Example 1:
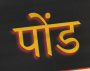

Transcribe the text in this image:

पोंड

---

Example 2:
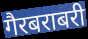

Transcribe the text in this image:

गैरबराबरी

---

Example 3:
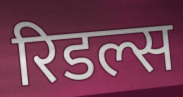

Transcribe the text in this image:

रिडल्स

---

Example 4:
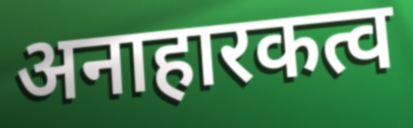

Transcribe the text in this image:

अनाहारकत्व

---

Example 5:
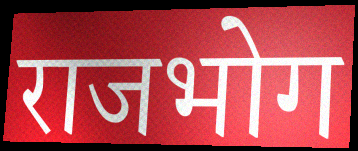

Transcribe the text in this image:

राजभोग